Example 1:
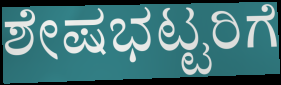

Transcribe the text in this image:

ಶೇಷಭಟ್ಟರಿಗೆ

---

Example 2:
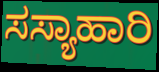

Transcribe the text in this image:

ಸಸ್ಯಾಹಾರಿ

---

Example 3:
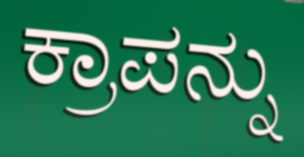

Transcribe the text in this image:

ಕ್ರಾಪನ್ನು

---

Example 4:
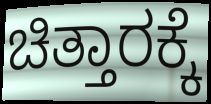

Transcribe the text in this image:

ಚಿತ್ತಾರಕ್ಕೆ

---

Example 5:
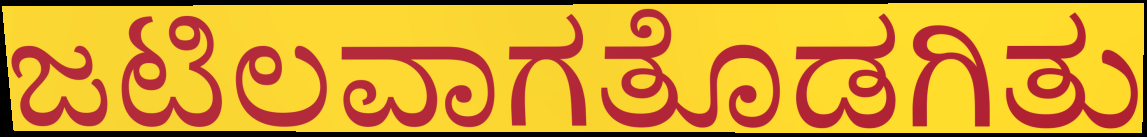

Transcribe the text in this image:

ಜಟಿಲವಾಗತೊಡಗಿತು